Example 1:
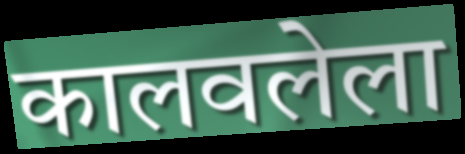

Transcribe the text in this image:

कालवलेला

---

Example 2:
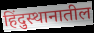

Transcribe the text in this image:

हिंदुस्थानातील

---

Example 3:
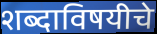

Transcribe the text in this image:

शब्दाविषयीचे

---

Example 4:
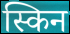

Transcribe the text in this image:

स्किन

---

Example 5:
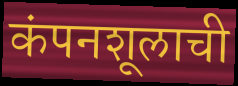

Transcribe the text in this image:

कंपनशूलाची